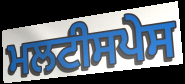
ਮਲਟੀਸਪੇਸ